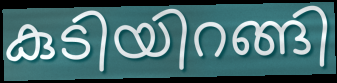
കുടിയിറങ്ങി